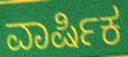
ವಾರ್ಷಿಕ